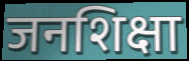
जनशिक्षा